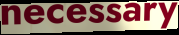
necessary